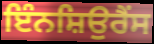
ਇੰਨਸ਼ਿਉਰੈਂਸ